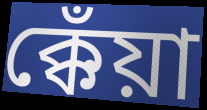
ক্কেঁয়া